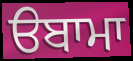
ੳਬਾਮਾ